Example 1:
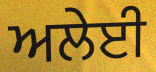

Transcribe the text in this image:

ਅਲੇਈ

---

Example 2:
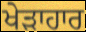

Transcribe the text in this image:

ਖੇੜਾਹਾਰ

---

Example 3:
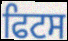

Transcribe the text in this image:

ਫਿਟਸ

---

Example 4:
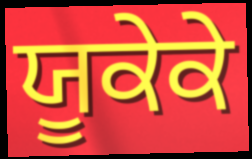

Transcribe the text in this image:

ਯੂਕੇਕੇ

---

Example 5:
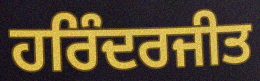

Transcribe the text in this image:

ਹਰਿੰਦਰਜੀਤ